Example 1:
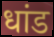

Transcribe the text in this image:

धांड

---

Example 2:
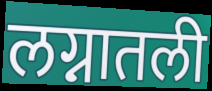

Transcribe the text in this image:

लग्नातली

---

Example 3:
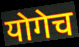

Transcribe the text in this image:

योगेच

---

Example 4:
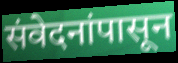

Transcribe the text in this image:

संवेदनांपासून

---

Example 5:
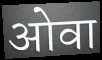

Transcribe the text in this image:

ओवा